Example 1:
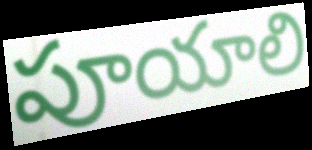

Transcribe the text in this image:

పూయాలి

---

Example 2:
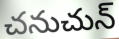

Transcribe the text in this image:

చనుచున్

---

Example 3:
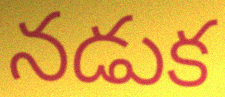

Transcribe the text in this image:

నడుక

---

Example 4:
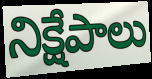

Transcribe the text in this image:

నిక్షేపాలు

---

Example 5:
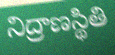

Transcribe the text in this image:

నిద్రాణస్థితి